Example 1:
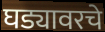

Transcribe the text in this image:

घड्यावरचे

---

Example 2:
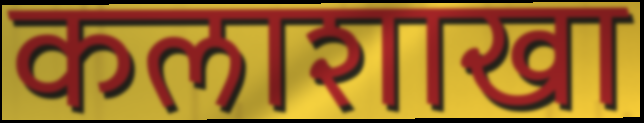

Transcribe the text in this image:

कलाशाखा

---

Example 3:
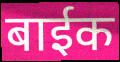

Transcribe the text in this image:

बाईक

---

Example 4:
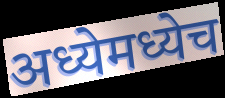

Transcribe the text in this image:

अध्येमध्येच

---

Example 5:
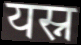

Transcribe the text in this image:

यस्न